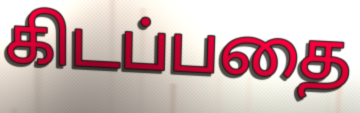
கிடப்பதை